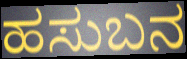
ಹಸುಬನ